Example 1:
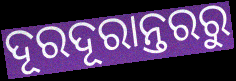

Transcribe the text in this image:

ଦୂରଦୂରାନ୍ତରରୁ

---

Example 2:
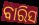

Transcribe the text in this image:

ବାରିସ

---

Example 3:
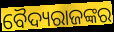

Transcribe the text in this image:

ବୈଦ୍ୟରାଜଙ୍କର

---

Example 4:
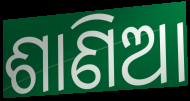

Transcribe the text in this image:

ଶାଣିଆ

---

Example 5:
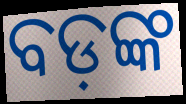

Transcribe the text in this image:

ବଡ଼ଙ୍କ